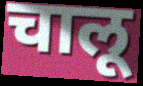
चालू